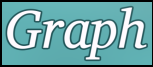
Graph